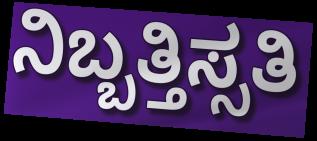
ನಿಬ್ಬತ್ತಿಸ್ಸತಿ